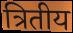
त्रितीय